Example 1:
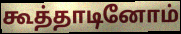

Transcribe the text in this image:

கூத்தாடினோம்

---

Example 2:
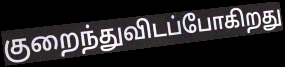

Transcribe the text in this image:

குறைந்துவிடப்போகிறது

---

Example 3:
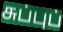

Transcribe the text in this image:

சுப்புப்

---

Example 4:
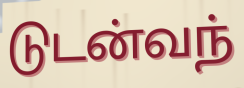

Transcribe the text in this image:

டுடன்வந்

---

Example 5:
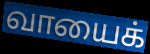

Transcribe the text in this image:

வாயைக்